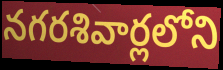
నగరశివార్లలోని